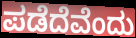
ಪಡೆದೆವೆಂದು